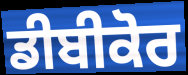
ਡੀਬੀਕੋਰ